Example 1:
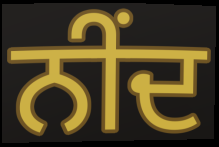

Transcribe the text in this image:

ਨੀਂਦ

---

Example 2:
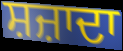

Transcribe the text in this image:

ਸ਼ਜ਼ਾਦਾ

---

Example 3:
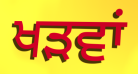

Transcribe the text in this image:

ਖੜਵਾਂ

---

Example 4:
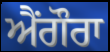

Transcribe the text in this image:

ਐਂਗੌਰਾ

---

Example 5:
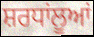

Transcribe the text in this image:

ਸ਼ਰਧਾਂਲੂਆਂ